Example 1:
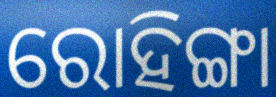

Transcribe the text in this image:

ରୋହିଙ୍ଗା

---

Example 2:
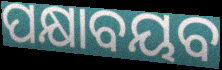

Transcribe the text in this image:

ପକ୍ଷାବୟବ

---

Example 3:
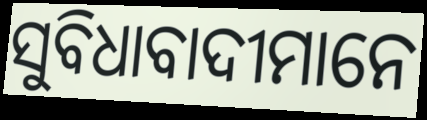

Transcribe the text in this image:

ସୁବିଧାବାଦୀମାନେ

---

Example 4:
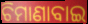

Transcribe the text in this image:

ଚିମାଣାବାଇ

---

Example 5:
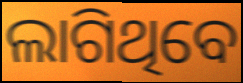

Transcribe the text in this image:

ଲାଗିଥିବେ